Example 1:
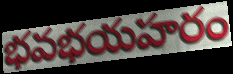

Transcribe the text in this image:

భవభయహరం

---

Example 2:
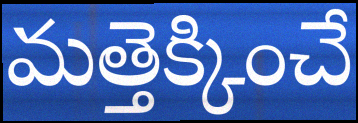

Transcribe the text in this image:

మత్తెక్కించే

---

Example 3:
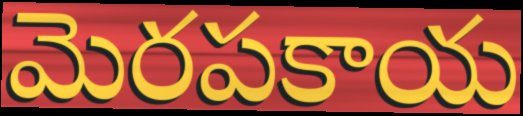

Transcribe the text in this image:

మెరపకాయ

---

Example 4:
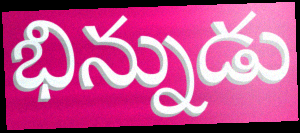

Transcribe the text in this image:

భిన్నుడు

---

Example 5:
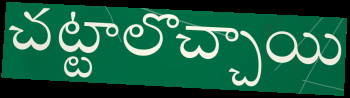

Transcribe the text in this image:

చట్టాలొచ్చాయి